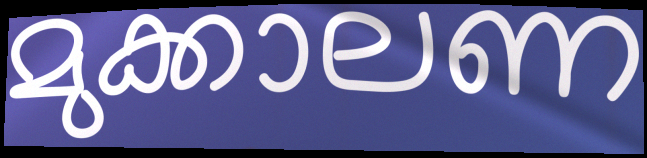
മുക്കാലണ